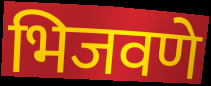
भिजवणे